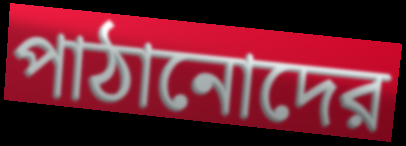
পাঠানোদের